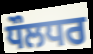
ਧੌਲਧਰ